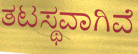
ತಟಸ್ಥವಾಗಿವೆ